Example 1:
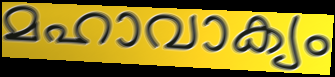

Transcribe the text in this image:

മഹാവാക്യം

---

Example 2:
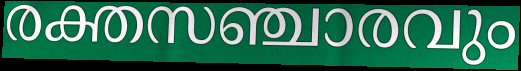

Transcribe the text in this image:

രക്തസഞ്ചാരവും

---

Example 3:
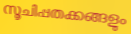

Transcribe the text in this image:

സൂചിപ്പതക്കങ്ങളും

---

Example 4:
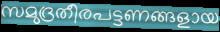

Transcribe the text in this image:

സമുദ്രതീരപട്ടണങ്ങളായ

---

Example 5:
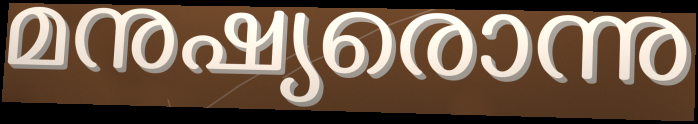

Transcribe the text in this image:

മനുഷ്യരൊന്നു